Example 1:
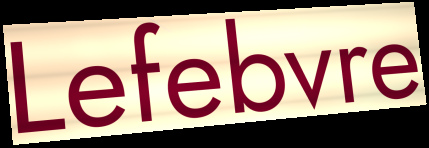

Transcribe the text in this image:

Lefebvre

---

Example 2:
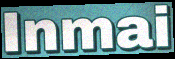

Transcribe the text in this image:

Inmai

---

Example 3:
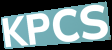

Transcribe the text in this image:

KPCS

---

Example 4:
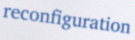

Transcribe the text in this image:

reconfiguration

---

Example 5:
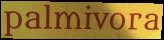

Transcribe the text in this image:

palmivora